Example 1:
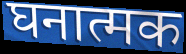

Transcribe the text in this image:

घनात्मक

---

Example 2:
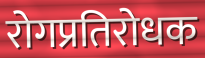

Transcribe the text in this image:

रोगप्रतिरोधक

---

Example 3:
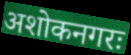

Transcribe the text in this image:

अशोकनगरः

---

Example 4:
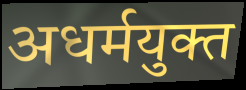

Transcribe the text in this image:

अधर्मयुक्त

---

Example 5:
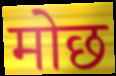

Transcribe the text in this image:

मोछ